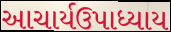
આચાર્યઉપાધ્યાય